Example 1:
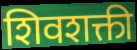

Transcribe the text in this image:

शिवशक्ती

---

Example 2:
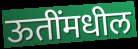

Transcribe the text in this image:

ऊतींमधील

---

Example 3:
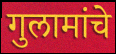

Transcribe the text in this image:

गुलामांचे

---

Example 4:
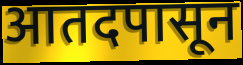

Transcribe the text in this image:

आतदपासून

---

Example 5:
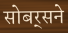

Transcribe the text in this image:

सोबर्सने